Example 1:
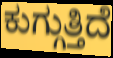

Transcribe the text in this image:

ಕುಗ್ಗುತ್ತಿದೆ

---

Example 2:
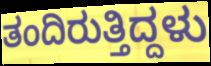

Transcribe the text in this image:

ತಂದಿರುತ್ತಿದ್ದಳು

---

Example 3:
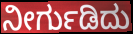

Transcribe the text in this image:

ನೀರ್ಗುಡಿದು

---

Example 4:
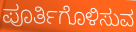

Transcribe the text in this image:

ಪೂರ್ತಿಗೊಳಿಸುವ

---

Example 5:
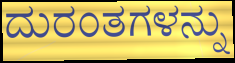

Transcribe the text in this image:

ದುರಂತಗಳನ್ನು